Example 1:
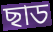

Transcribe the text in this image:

ছাড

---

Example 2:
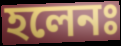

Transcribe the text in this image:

হলেনঃ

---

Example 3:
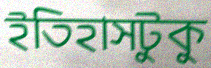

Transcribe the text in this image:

ইতিহাসটুকু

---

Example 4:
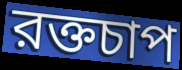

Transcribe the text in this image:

রক্তচাপ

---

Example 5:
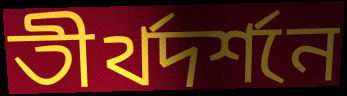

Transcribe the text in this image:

তীর্থদর্শনে